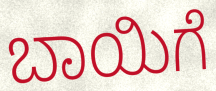
ಬಾಯಿಗೆ